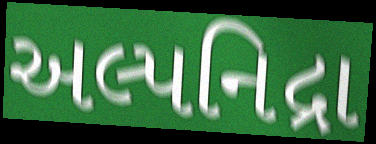
અલ્પનિદ્રા